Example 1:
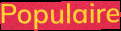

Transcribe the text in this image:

Populaire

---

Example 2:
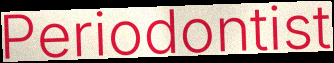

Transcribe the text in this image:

Periodontist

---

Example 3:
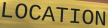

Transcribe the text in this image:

LOCATION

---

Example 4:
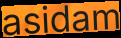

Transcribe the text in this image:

asidam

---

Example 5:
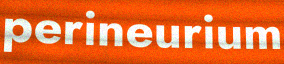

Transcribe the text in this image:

perineurium